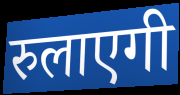
रुलाएगी